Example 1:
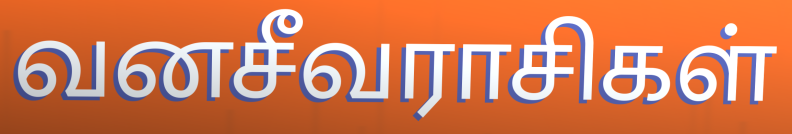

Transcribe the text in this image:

வனசீவராசிகள்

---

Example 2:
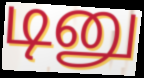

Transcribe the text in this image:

டினு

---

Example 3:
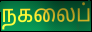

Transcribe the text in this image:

நகலைப்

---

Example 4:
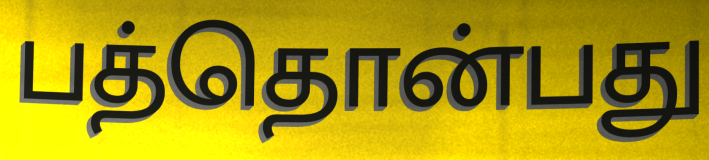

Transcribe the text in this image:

பத்தொன்பது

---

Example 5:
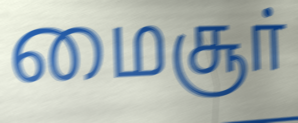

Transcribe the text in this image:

மைசூர்